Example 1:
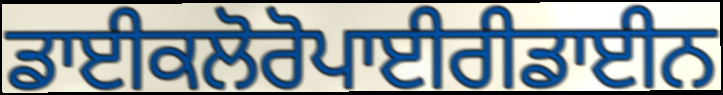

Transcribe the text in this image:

ਡਾਈਕਲੋਰੋਪਾਈਰੀਡਾਈਨ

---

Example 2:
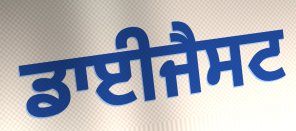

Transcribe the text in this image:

ਡਾਈਜੈਸਟ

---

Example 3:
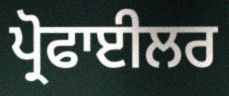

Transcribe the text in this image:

ਪ੍ਰੋਫਾਈਲਰ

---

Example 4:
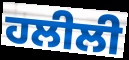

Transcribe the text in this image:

ਹਲੀਲੀ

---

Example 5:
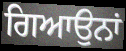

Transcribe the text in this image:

ਗਿਆਉਨਾਂ